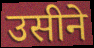
उसीने